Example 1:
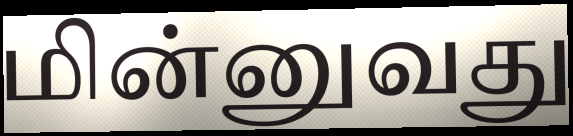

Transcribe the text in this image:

மின்னுவது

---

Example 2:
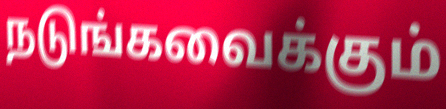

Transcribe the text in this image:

நடுங்கவைக்கும்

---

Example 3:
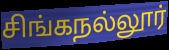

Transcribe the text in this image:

சிங்கநல்லூர்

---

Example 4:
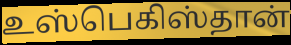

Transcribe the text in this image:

உஸ்பெகிஸ்தான்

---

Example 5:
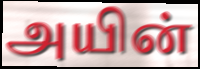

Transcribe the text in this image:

அயின்